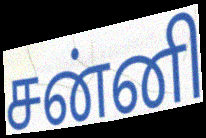
சன்னி